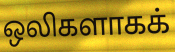
ஒலிகளாகக்